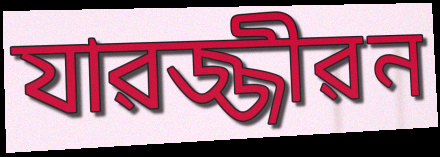
যাৱজ্জীৱন